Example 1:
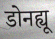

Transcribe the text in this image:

डोनह्यू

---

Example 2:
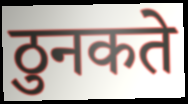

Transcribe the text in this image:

ठुनकते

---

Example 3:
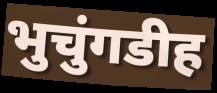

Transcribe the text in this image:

भुचुंगडीह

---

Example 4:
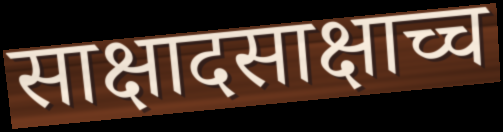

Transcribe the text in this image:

साक्षादसाक्षाच्च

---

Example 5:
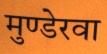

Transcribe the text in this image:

मुण्डेरवा